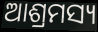
ଆଶ୍ରମସ୍ୟ